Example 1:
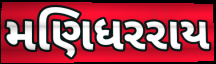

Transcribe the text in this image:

મણિધરરાય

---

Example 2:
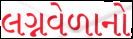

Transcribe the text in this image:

લગ્નવેળાનો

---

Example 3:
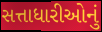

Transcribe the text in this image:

સત્તાધારીઓનું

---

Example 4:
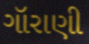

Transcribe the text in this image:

ગૉરાણી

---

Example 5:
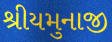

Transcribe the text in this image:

શ્રીયમુનાજી